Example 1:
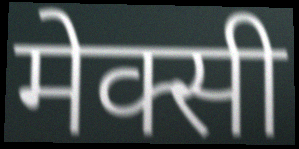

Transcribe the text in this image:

मेक्सी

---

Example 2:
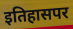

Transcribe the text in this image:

इतिहासपर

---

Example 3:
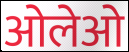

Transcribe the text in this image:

ओलेओ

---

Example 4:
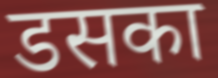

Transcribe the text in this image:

डसका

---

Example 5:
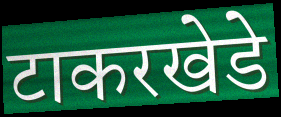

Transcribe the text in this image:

टाकरखेडे